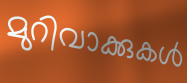
മുറിവാക്കുകൾ